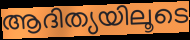
ആദിത്യയിലൂടെ